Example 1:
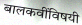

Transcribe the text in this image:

बालकवींविषयी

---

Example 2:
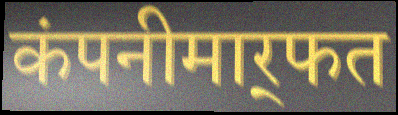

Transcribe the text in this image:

कंपनीमार्फत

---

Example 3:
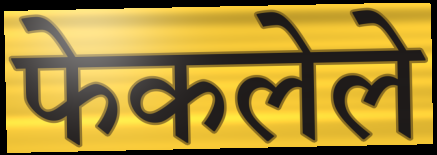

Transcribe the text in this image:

फेकलेले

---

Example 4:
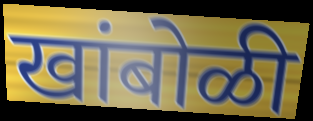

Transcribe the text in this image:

खांबोळी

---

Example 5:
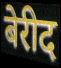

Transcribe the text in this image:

बेरीद